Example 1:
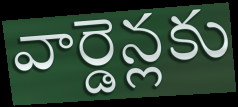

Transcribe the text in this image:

వార్డెన్లకు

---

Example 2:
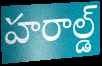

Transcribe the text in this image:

హరాల్డ్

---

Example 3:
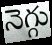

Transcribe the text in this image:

నెగ్గు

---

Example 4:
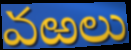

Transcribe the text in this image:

వఱలు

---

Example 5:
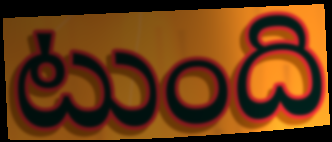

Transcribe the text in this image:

టుంది